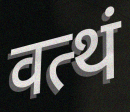
वत्थं